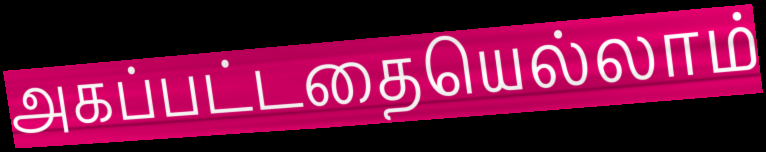
அகப்பட்டதையெல்லாம்